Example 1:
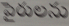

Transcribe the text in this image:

పైరులను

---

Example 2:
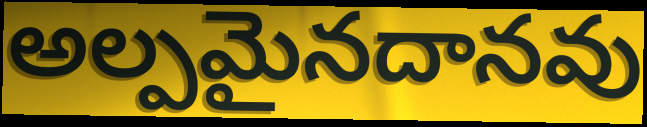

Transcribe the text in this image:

అల్పమైనదానవు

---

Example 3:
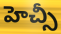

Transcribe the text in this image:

హెచ్సీ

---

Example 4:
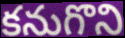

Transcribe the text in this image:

కనుగొని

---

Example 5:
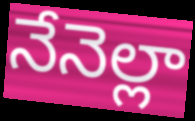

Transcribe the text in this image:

నేనెల్లా